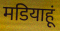
मडियाहूं